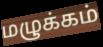
மழுக்கம்